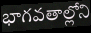
భాగవతాల్లోని